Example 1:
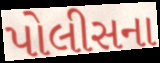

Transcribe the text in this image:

પોલીસના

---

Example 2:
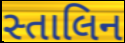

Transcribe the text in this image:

સ્તાલિન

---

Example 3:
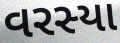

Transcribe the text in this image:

વરસ્યા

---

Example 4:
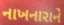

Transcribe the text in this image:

નાખનારાને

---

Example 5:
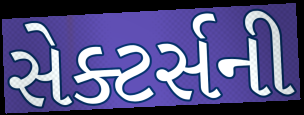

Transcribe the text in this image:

સેક્ટર્સની